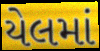
યેલમાં